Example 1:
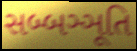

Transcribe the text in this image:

સબ્બઞ્ઞૂતિ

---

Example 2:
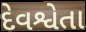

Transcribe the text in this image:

દેવશ્વેતા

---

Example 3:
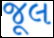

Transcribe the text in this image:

જૂલ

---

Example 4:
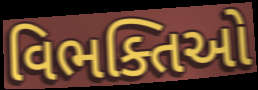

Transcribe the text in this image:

વિભક્તિઓ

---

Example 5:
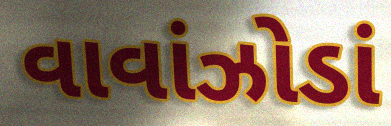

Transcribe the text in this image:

વાવાંઝોડાં